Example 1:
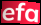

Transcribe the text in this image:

efa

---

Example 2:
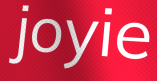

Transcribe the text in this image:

joyie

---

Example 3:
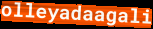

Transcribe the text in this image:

olleyadaagali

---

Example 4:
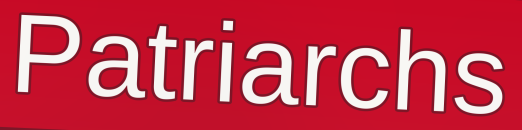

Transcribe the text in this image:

Patriarchs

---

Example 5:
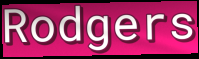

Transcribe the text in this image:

Rodgers